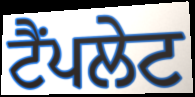
ਟੈਂਪਲੇਟ